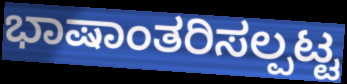
ಭಾಷಾಂತರಿಸಲ್ಪಟ್ಟ